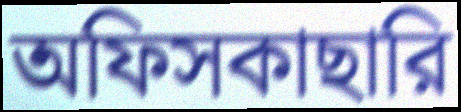
অফিসকাছারি